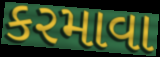
કરમાવા